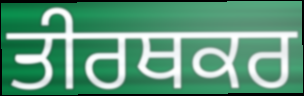
ਤੀਰਥਕਰ